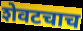
शेवटचाच